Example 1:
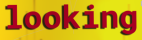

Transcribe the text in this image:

looking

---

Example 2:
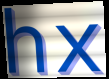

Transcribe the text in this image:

hx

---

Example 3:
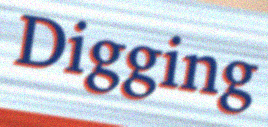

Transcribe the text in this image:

Digging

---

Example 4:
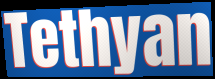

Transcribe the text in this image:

Tethyan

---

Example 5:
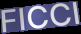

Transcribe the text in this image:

FICCI